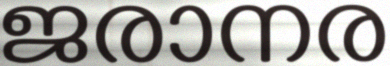
ജരാനര